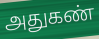
அதுகண்